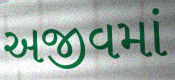
અજીવમાં